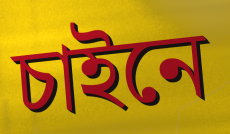
চাইনে